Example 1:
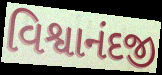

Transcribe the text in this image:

વિશ્વાનંદજી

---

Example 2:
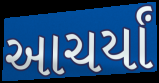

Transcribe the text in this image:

આચર્યાં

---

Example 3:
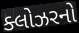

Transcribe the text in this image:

ક્લોઝરનો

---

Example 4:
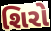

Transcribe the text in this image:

શિરો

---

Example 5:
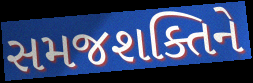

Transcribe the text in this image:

સમજશક્તિને